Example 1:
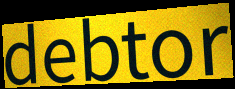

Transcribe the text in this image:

debtor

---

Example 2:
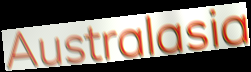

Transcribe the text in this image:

Australasia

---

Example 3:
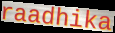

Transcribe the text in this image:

raadhika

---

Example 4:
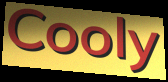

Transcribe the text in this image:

Cooly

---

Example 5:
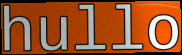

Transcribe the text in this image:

hullo